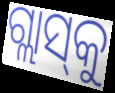
ଗ୍ଲାସ୍‌କୁ